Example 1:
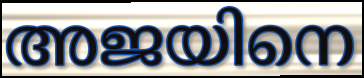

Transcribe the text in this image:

അജയിനെ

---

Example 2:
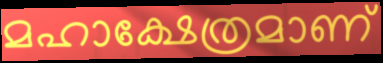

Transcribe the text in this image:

മഹാക്ഷേത്രമാണ്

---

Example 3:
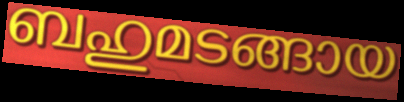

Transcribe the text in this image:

ബഹുമടങ്ങായ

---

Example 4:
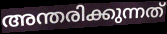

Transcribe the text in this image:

അന്തരിക്കുന്നത്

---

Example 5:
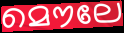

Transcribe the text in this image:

മൌലേ